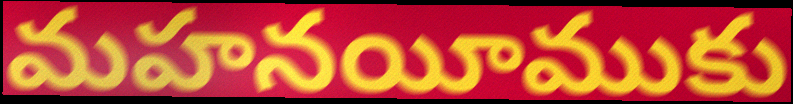
మహనయీముకు